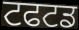
ਟਫਟਡ